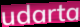
udarta